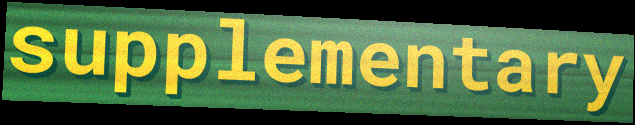
supplementary